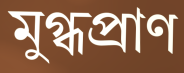
মুগ্ধপ্রাণ